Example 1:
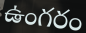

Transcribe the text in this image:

ఉంగరం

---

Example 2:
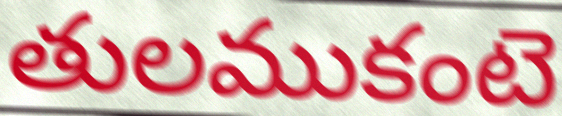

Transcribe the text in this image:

తులముకంటె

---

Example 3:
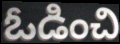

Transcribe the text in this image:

ఓడించి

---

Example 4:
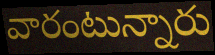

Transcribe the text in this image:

వారంటున్నారు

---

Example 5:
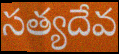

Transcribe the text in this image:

సత్యదేవ